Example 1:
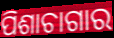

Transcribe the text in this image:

ପିଶାଚାଗାର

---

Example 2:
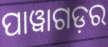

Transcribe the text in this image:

ପାୱାଗଡ଼ର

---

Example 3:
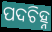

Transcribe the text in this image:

ପଦଚିହ୍ନ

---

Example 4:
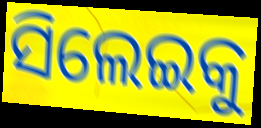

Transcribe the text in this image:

ସିଲେଇକୁ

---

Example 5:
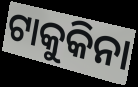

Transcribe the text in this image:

ଟାକୁକିନା